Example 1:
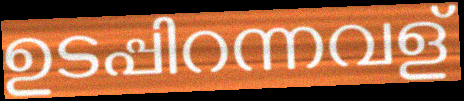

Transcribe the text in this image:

ഉടപ്പിറന്നവള്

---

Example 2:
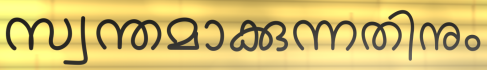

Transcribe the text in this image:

സ്വന്തമാക്കുന്നതിനും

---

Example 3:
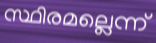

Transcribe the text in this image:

സ്ഥിരമല്ലെന്ന്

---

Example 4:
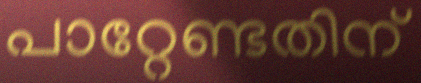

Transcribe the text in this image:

പാറ്റേണ്ടതിന്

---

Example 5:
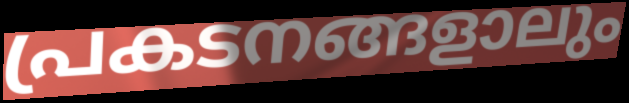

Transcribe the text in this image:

പ്രകടനങ്ങളാലും